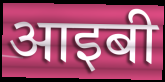
आइबी